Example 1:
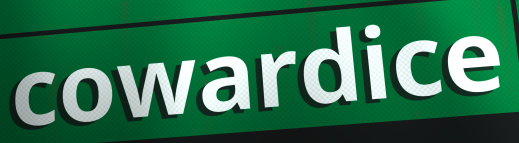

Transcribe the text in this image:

cowardice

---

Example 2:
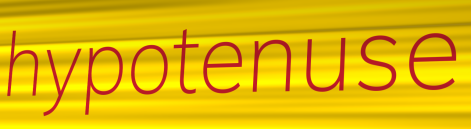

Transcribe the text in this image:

hypotenuse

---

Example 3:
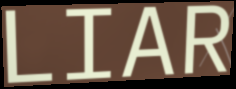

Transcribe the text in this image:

LIAR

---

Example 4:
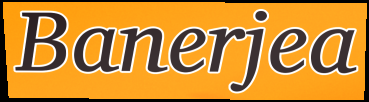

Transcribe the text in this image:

Banerjea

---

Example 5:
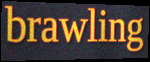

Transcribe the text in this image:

brawling